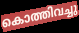
കൊത്തിവച്ചു